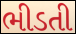
ભીડતી